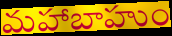
మహాబాహుం